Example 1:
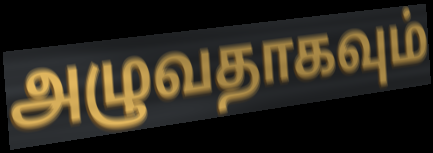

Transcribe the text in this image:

அழுவதாகவும்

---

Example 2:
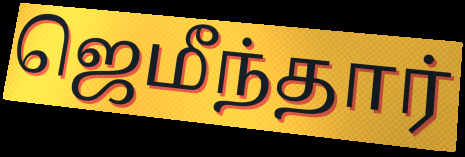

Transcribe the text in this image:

ஜெமீந்தார்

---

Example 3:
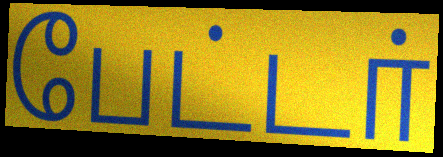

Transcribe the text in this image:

பேட்டர்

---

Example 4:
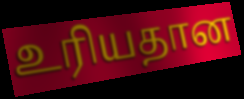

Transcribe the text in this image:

உரியதான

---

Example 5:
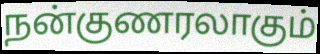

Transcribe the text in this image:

நன்குணரலாகும்